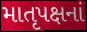
માતૃપક્ષનાં